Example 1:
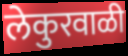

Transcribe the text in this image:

लेकुरवाळी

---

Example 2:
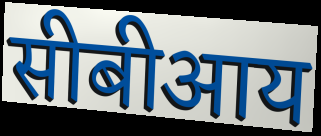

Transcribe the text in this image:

सीबीआय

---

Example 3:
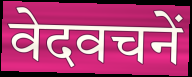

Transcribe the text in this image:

वेदवचनें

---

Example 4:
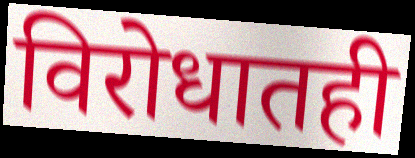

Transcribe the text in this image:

विरोधातही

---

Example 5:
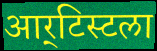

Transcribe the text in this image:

आर्टिस्टला